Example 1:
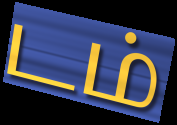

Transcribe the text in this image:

டம்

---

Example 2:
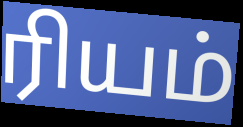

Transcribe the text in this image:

ரியம்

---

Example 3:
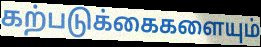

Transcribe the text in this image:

கற்படுக்கைகளையும்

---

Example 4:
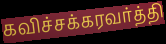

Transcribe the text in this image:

கவிச்சக்கரவர்த்தி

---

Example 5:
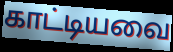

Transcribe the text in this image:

காட்டியவை